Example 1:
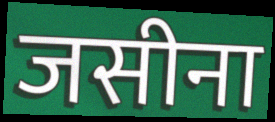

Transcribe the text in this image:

जसीना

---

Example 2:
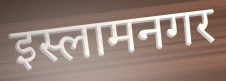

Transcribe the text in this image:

इस्लामनगर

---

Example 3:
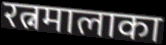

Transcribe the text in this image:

रत्नमालाका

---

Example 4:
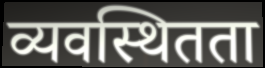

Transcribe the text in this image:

व्यवस्थितता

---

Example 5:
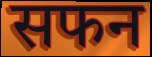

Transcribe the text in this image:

सफन